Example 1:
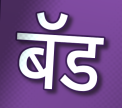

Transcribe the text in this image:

बॅड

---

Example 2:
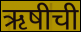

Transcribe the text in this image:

ॠषीची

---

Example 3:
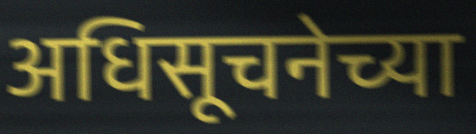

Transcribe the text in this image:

अधिसूचनेच्या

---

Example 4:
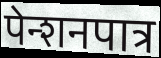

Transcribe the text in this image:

पेन्शनपात्र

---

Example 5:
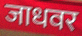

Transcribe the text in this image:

जाधवर